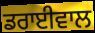
ਡਰਾਈਵਾਲ